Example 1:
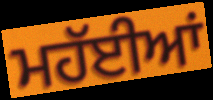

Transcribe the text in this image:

ਮਹੱਈਆਂ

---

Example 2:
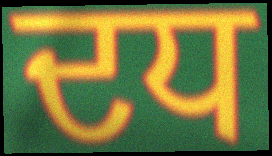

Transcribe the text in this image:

ਦਧ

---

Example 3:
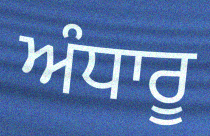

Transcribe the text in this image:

ਅੰਧਾਰੂ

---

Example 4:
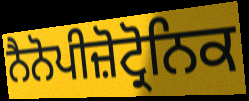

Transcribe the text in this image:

ਨੈਨੋਪੀਜ਼ੋਟ੍ਰੋਨਿਕ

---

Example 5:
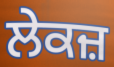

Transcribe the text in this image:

ਲੇਕਜ਼